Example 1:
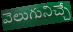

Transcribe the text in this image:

వెలుగునిచ్చే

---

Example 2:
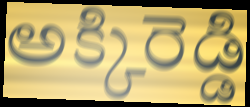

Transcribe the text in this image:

అక్కిరెడ్డి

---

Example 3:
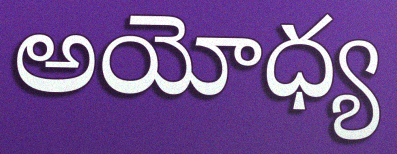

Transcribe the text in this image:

అయోధ్య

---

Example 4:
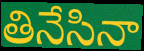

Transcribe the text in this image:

తినేసినా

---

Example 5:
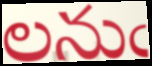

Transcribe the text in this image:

లనుఁ